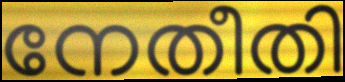
നേതീതി